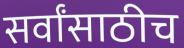
सर्वांसाठीच